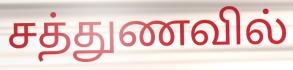
சத்துணவில்